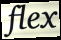
flex